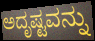
ಅದೃಷ್ಟವನ್ನು